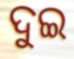
ଦୁଇ